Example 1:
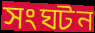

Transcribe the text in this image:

সংঘটন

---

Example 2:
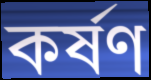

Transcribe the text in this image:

কৰ্ষণ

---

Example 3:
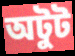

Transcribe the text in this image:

অটুট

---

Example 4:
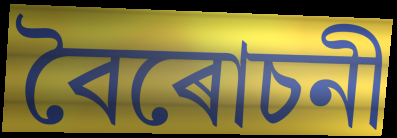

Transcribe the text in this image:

বৈৰোচনী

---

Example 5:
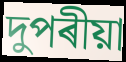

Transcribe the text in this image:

দুপৰীয়া